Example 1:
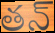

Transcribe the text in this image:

తన్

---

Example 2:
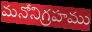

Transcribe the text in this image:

మనోనిగ్రహము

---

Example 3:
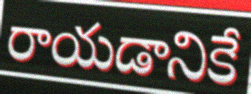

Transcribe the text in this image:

రాయడానికే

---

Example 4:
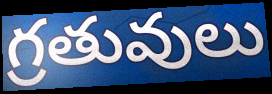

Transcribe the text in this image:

గ్రతువులు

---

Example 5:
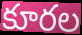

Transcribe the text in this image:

కూరల